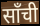
साँची